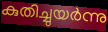
കുതിച്ചുയർന്നു